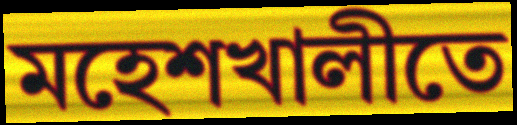
মহেশখালীতে